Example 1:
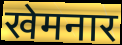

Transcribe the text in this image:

खेमनार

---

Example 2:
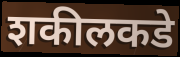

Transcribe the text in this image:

शकीलकडे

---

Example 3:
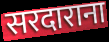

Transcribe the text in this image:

सरदाराना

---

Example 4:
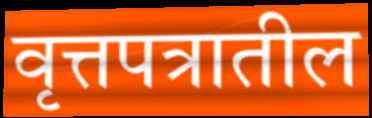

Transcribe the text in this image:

वृत्तपत्रातील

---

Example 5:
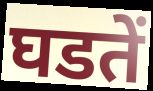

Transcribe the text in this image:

घडतें